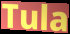
Tula